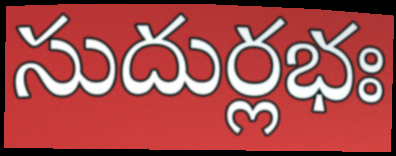
సుదుర్లభః